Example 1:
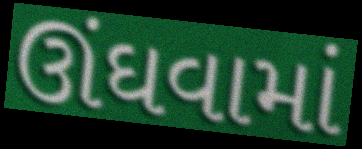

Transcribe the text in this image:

ઊંઘવામાં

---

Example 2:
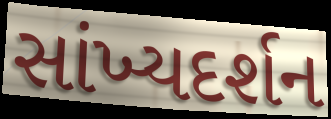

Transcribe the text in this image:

સાંખ્યદર્શન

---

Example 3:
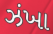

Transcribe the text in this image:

ઝંખા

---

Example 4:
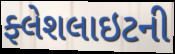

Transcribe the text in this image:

ફ્લેશલાઇટની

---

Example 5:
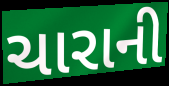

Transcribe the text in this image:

ચારાની